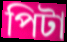
পিটা